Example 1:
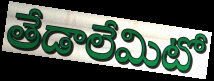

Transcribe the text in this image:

తేడాలేమిటో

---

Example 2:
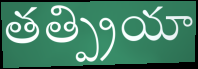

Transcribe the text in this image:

తత్ప్రియా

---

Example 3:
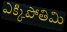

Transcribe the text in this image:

ఎక్కిపోతిమి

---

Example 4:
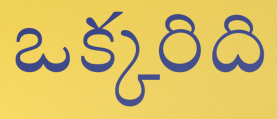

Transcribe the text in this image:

ఒక్కరిది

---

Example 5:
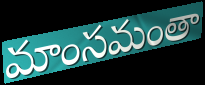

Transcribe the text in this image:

మాంసమంతా